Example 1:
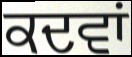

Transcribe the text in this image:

ਕਦਵਾਂ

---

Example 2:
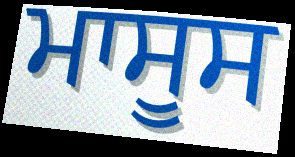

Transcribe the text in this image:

ਮਾਸੂਸ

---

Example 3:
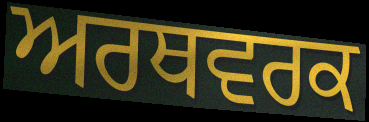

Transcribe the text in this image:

ਅਰਥਵਰਕ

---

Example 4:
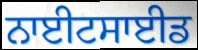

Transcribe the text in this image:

ਨਾਈਟਸਾਈਡ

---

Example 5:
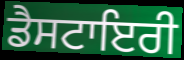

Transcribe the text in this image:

ਡੈਸਟਾਇਰੀ